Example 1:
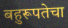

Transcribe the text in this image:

बहुरूपतेचा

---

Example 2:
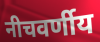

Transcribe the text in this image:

नीचवर्णीय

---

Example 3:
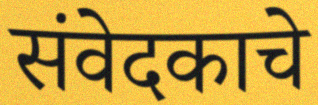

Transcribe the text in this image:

संवेदकाचे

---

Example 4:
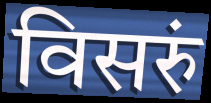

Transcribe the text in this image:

विसरुं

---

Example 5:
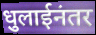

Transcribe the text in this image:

धुलाईनंतर